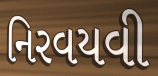
નિરવયવી